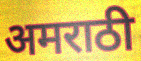
अमराठी